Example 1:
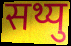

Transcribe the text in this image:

सथ्यु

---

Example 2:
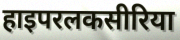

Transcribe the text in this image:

हाइपरलकसीरिया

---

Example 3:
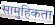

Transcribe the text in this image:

सामुहिकता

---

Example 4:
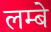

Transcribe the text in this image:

लम्बे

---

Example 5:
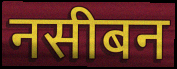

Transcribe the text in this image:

नसीबन